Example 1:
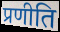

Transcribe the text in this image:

प्रणीति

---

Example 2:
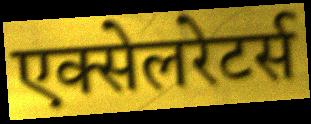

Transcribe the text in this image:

एक्सेलरेटर्स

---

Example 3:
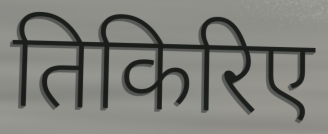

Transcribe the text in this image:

तिकिरिए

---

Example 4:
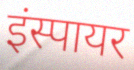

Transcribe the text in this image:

इंस्पायर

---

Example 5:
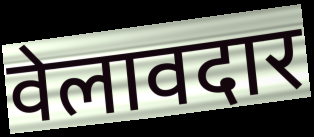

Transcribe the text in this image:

वेलावदार